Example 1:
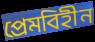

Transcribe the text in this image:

প্রেমবিহীন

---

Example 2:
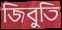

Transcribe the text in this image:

জিবুতি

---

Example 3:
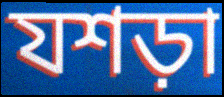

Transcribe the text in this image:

যশড়া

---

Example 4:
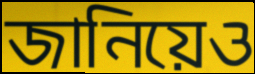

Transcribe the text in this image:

জানিয়েও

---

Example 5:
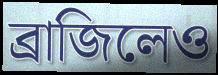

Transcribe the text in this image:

ব্রাজিলেও